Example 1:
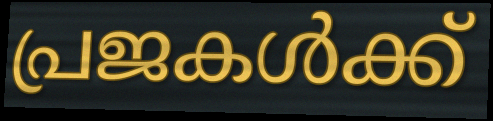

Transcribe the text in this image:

പ്രജകൾക്ക്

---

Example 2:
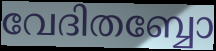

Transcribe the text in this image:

വേദിതബ്ബോ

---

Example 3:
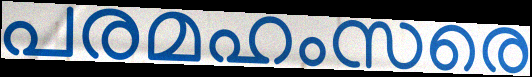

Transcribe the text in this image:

പരമഹംസരെ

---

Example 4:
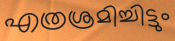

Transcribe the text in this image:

എത്രശ്രമിച്ചിട്ടും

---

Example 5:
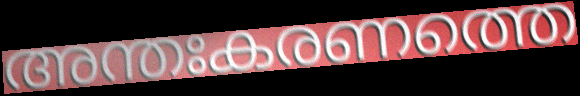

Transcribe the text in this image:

അന്തഃകരണത്തെ